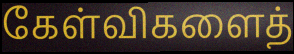
கேள்விகளைத்